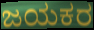
ಜಯಕರ